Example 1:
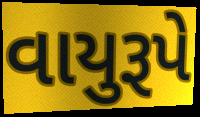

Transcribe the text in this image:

વાયુરૂપે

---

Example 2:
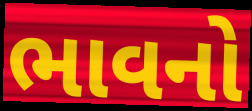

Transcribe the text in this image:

ભાવનો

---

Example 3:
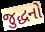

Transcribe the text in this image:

જુદ્ધનો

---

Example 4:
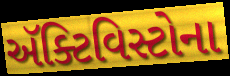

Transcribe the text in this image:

ઍક્ટિવિસ્ટોના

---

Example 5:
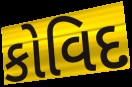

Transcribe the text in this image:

કોવિદ